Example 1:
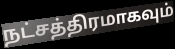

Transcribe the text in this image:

நட்சத்திரமாகவும்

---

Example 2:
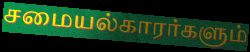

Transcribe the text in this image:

சமையல்காரர்களும்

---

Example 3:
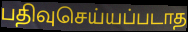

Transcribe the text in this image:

பதிவுசெய்யப்படாத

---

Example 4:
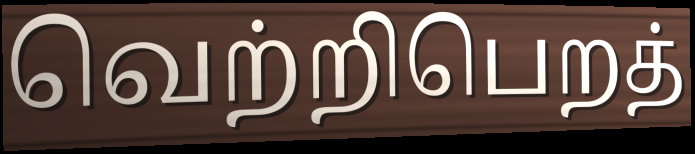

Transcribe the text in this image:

வெற்றிபெறத்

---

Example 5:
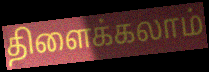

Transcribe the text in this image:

திளைக்கலாம்